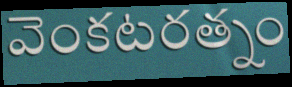
వెంకటరత్నం